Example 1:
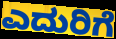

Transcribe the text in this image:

ಎದುರಿಗೆ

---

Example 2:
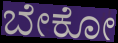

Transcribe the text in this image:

ಬೇಕೋ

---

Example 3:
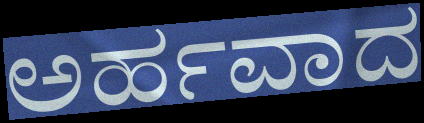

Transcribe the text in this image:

ಅರ್ಹವಾದ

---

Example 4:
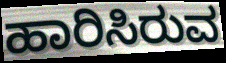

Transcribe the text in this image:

ಹಾರಿಸಿರುವ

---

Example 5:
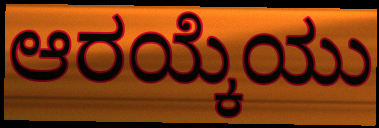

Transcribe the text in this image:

ಆರಯ್ಕೆಯು